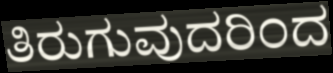
ತಿರುಗುವುದರಿಂದ